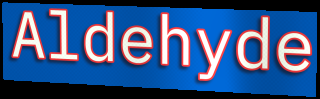
Aldehyde